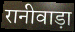
रानीवाड़ा